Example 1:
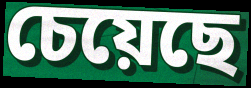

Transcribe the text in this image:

চেয়েছে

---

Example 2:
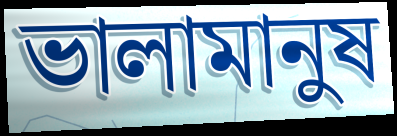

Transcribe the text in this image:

ভালামানুষ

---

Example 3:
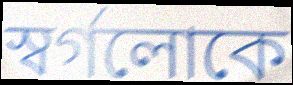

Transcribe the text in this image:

স্বর্গলোকে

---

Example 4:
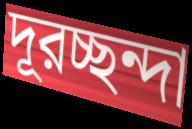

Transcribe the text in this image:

দূরচ্ছন্দা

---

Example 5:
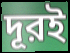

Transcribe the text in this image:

দূরই